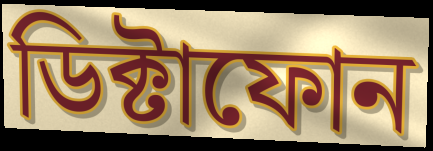
ডিক্টাফোন